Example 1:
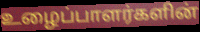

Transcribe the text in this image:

உழைப்பாளர்களின்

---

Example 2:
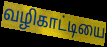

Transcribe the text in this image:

வழிகாட்டியை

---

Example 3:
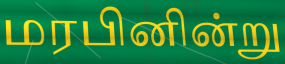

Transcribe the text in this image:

மரபினின்று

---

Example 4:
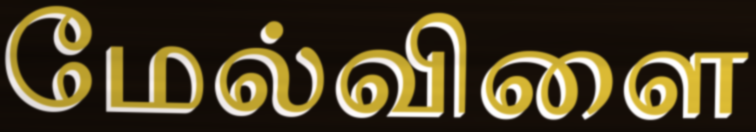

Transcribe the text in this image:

மேல்விளை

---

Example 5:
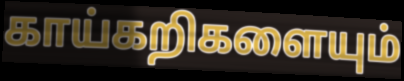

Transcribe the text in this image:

காய்கறிகளையும்